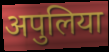
अपुलिया